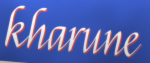
kharune